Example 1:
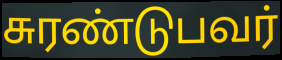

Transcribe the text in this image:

சுரண்டுபவர்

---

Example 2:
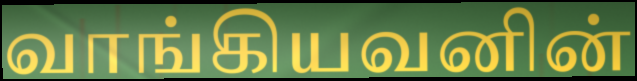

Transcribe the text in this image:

வாங்கியவனின்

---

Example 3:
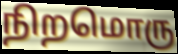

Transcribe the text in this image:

நிறமொரு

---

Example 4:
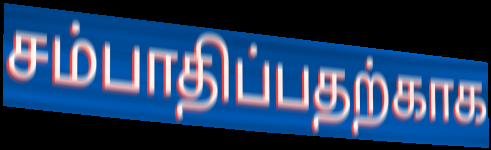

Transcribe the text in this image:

சம்பாதிப்பதற்காக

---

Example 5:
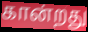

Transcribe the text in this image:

கான்றது